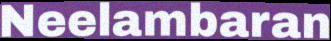
Neelambaran